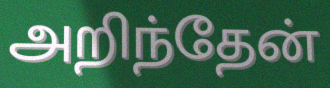
அறிந்தேன்